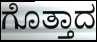
ಗೊತ್ತಾದ